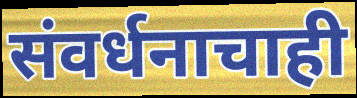
संवर्धनाचाही